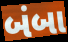
બંબા